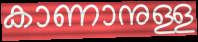
കാണാനുള്ള